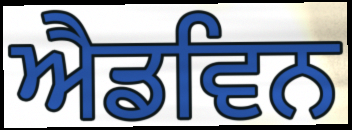
ਐਡਵਿਨ